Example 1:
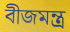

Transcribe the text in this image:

বীজমন্ত্র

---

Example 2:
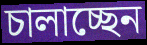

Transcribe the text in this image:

চালাচ্ছেন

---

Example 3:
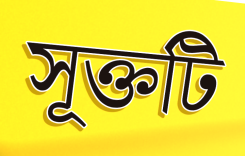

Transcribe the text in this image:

সূক্তটি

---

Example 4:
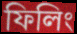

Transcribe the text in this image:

ফিলিং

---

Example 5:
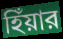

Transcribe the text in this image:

হিঁয়ার